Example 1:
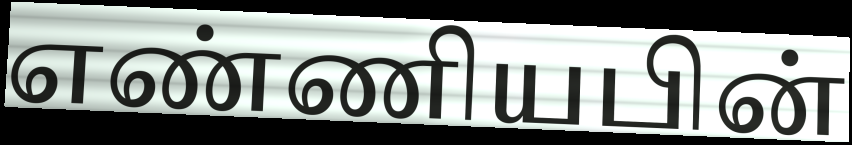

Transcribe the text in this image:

எண்ணியபின்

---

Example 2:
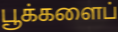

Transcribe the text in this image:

பூக்களைப்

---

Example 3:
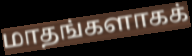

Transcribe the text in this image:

மாதங்களாகக்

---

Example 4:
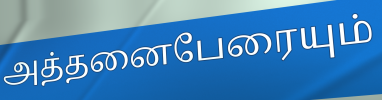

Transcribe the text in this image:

அத்தனைபேரையும்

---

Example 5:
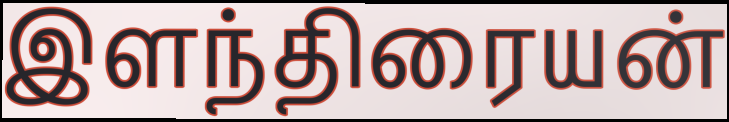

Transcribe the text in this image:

இளந்திரையன்